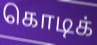
கொடிக்